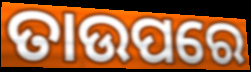
ତାଉପରେ